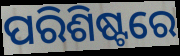
ପରିଶିଷ୍ଟରେ